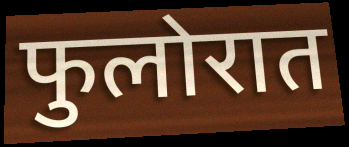
फुलोरात